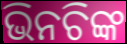
ଭିନଚିଙ୍କ